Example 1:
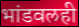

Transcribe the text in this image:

भांडवलही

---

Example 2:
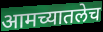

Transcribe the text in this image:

आमच्यातलेच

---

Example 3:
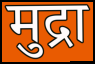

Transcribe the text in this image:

मुद्रा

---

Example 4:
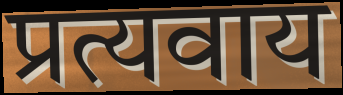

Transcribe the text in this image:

प्रत्यवाय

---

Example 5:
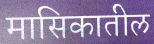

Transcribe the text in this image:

मासिकातील